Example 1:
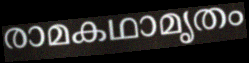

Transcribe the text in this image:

രാമകഥാമൃതം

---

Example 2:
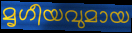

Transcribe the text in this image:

മൃഗീയവുമായ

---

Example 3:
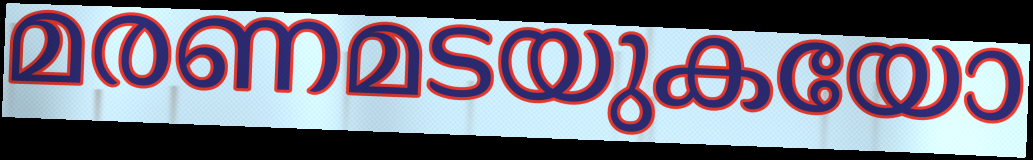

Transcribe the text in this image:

മരണമടയുകയോ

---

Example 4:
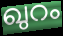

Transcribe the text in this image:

ഖുറം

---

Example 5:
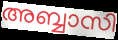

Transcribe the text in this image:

അബ്ബാസി